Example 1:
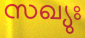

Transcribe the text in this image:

സഖ്യുഃ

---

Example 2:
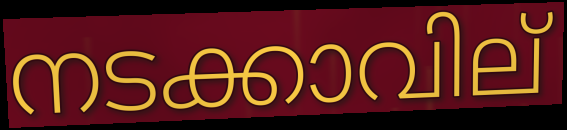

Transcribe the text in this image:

നടക്കാവില്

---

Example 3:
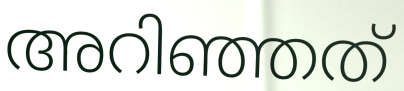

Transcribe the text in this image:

അറിഞ്ഞത്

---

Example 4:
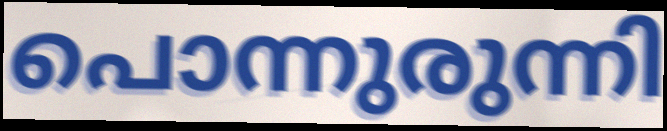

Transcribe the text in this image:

പൊന്നുരുന്നി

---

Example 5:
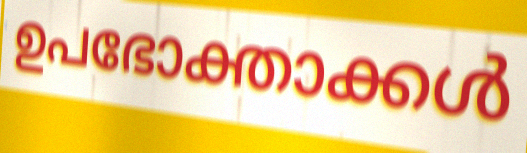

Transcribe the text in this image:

ഉപഭോക്താക്കൾ